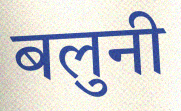
बलुनी